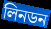
লিনডন